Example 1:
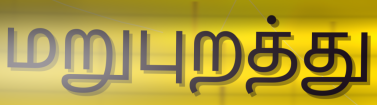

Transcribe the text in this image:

மறுபுறத்து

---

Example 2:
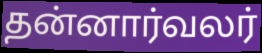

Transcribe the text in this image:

தன்னார்வலர்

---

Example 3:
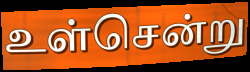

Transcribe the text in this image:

உள்சென்று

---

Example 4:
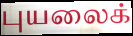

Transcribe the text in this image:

புயலைக்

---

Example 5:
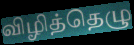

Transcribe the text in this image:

விழித்தெழு